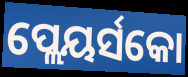
ପ୍ଲେୟର୍ସକୋ